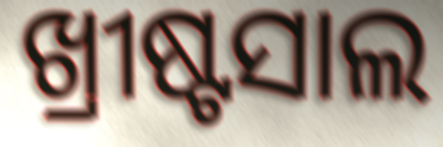
ଖ୍ରୀଷ୍ଟସାଲ